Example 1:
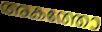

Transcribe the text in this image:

അകത്തോ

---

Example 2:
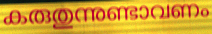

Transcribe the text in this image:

കരുതുന്നുണ്ടാവണം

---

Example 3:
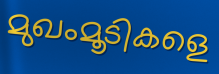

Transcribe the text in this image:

മുഖംമൂടികളെ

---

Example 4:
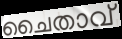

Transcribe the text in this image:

ചൈതാവ്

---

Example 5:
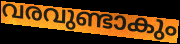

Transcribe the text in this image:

വരവുണ്ടാകും